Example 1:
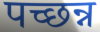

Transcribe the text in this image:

पच्छन्न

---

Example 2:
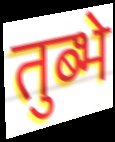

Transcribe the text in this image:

तुब्भे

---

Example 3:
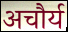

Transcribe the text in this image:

अचौर्य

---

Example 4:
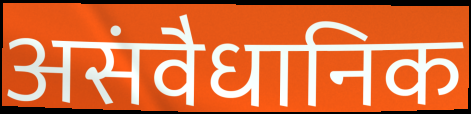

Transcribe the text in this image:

असंवैधानिक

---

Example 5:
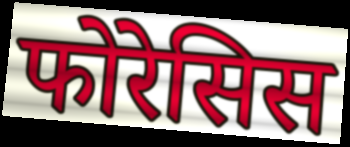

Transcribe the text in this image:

फोरेसिस